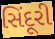
સિંદૂરી